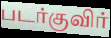
படர்குவிர்